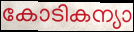
കോടികന്യാ